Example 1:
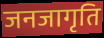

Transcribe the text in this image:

जनजागृति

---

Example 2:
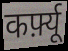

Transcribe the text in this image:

कर्फ़्यू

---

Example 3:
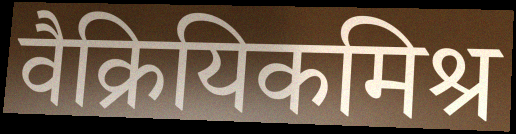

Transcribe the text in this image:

वैक्रियिकमिश्र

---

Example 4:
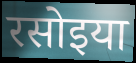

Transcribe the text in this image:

रसोइया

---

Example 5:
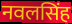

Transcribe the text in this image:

नवलसिंह